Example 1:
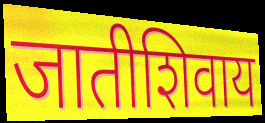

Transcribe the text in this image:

जातीशिवाय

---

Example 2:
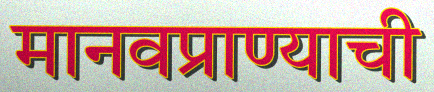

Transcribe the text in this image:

मानवप्राण्याची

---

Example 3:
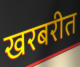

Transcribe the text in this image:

खरबरीत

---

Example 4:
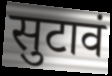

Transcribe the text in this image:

सुटावं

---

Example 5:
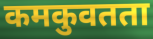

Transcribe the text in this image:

कमकुवतता